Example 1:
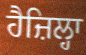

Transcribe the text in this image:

ਹੈਜ਼ਿਲ੍ਹਾ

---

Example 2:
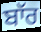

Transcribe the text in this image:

ਬਾੱਰ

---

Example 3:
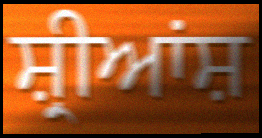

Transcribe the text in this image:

ਸ਼੍ਰੀਆਂਸ਼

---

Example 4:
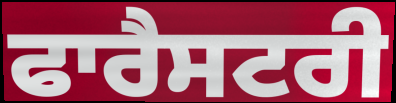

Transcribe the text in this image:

ਫਾਰੈਸਟਰੀ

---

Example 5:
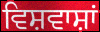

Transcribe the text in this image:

ਵਿਸ਼ਵਾਸ਼ਾਂ